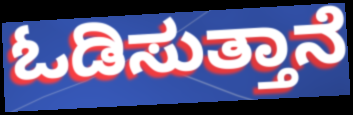
ಓಡಿಸುತ್ತಾನೆ